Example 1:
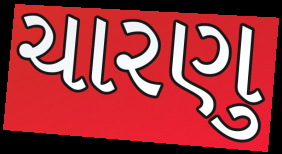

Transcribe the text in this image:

ચારણુ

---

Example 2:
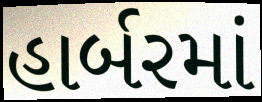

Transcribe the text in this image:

હાર્બરમાં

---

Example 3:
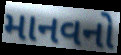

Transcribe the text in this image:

માનવનો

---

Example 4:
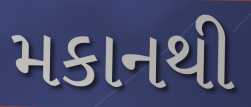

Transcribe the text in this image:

મકાનથી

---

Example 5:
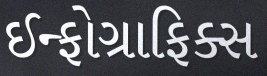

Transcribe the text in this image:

ઈન્ફોગ્રાફિક્સ